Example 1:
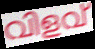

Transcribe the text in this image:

വിളവ്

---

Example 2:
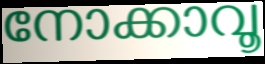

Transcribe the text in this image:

നോക്കാവൂ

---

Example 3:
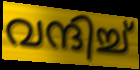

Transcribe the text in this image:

വന്ദിച്ച്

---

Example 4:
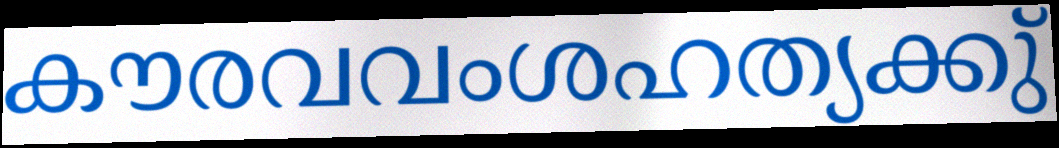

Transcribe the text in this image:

കൗരവവംശഹത്യക്കു്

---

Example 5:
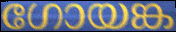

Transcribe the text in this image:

ഗോയങ്ക